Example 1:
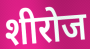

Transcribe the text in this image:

शीरोज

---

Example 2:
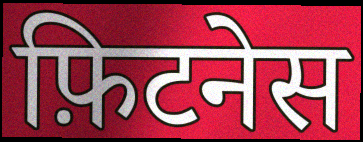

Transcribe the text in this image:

फ़िटनेस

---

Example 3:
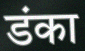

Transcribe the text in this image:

डंका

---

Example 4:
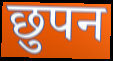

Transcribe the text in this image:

छुपन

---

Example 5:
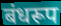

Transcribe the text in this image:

बंधरूप